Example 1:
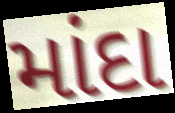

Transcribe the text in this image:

માંદા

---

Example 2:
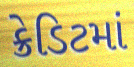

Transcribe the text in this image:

ક્રેડિટમાં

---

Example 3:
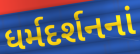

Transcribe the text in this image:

ધર્મદર્શનનાં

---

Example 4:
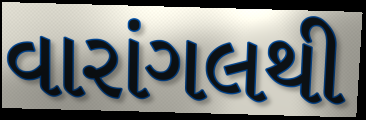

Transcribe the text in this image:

વારાંગલથી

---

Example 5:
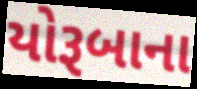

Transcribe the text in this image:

યોરૂબાના